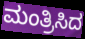
ಮಂತ್ರಿಸಿದ